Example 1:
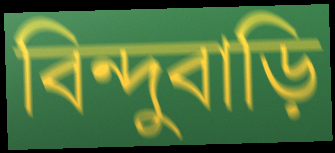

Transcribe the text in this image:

বিন্দুবাড়ি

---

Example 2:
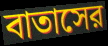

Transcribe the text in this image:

বাতাসের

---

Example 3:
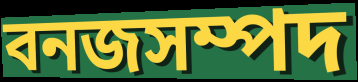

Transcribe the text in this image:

বনজসম্পদ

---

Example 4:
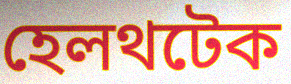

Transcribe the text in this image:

হেলথটেক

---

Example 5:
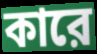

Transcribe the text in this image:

কারে